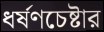
ধর্ষণচেষ্টার